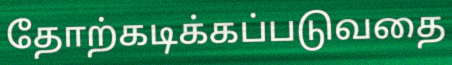
தோற்கடிக்கப்படுவதை